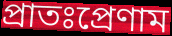
প্রাতঃপ্রেণাম